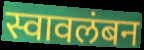
स्वावलंबन